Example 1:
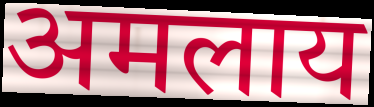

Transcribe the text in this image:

अमलाय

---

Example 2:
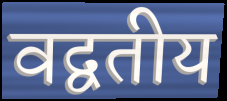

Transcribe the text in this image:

वद्वतीय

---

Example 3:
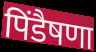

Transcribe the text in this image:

पिंडैषणा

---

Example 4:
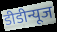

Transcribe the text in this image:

डीडीन्यूज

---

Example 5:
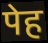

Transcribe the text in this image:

पेह